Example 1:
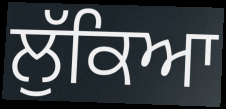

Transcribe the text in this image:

ਲੁੱਕਿਆ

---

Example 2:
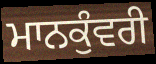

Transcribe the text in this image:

ਮਾਨਕੁੰਵਰੀ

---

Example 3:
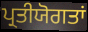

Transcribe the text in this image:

ਪ੍ਰਤੀਯੋਗਤਾਂ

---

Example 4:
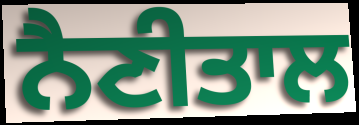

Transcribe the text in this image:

ਨੈਣੀਤਾਲ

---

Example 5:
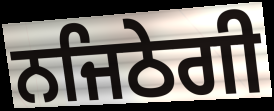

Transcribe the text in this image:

ਨਜਿਠੇਗੀ